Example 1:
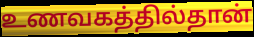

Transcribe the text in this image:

உணவகத்தில்தான்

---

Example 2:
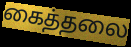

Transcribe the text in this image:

கைத்தலை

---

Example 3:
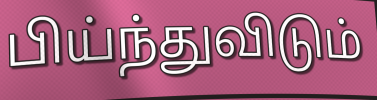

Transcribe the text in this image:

பிய்ந்துவிடும்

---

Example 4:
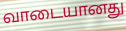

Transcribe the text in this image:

வாடையானது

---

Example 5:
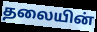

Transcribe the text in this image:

தலையின்